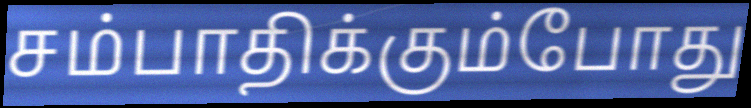
சம்பாதிக்கும்போது